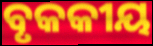
ବୃକକୀୟ